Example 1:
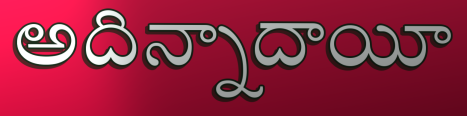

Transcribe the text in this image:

అదిన్నాదాయీ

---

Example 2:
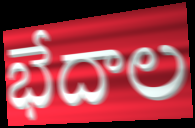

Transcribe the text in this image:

భేదాల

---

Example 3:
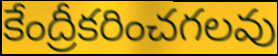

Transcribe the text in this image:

కేంద్రీకరించగలవు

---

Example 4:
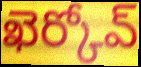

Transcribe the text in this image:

ఖెర్కోవ్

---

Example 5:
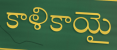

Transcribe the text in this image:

కాళికాయై